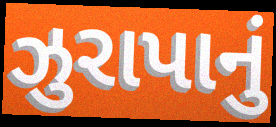
ઝુરાપાનું